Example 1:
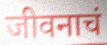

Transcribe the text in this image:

जीवनाचं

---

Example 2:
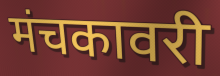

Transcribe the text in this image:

मंचकावरी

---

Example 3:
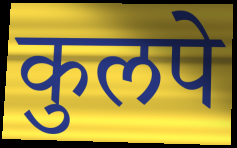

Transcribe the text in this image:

कुलपे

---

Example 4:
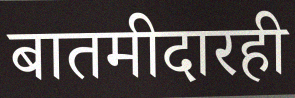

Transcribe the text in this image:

बातमीदारही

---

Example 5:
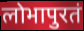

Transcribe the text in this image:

लोभापुरतं